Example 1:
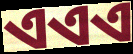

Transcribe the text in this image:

ଏଏଏ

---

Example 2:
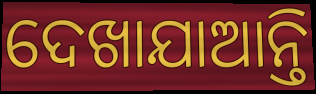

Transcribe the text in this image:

ଦେଖାଯାଆନ୍ତି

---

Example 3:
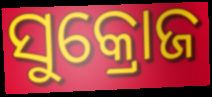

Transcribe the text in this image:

ସୁକ୍ରୋଜ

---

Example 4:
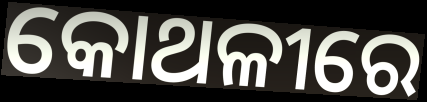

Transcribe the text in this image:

କୋଥଳୀରେ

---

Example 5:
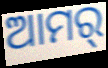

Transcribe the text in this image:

ଆମର୍